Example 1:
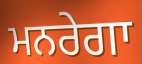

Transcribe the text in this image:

ਮਨਰੇਗਾ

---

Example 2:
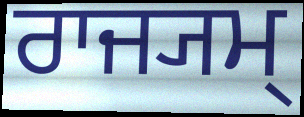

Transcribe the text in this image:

ਰਾਜ੍ਯਮ੍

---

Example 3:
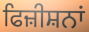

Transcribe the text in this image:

ਫਿਜ਼ੀਸ਼ਨਾਂ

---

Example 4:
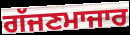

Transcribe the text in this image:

ਗੱਜਣਮਾਜਾਰ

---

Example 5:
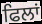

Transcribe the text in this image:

ਫਿਲਾਂ